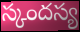
స్కందస్య